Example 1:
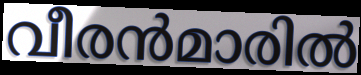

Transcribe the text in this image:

വീരൻമാരിൽ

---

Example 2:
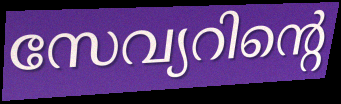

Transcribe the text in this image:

സേവ്യറിന്റെ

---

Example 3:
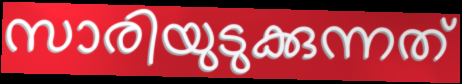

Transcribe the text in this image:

സാരിയുടുക്കുന്നത്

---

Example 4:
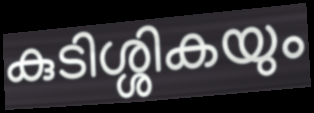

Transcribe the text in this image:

കുടിശ്ശികയും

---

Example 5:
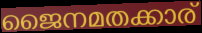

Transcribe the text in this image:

ജൈനമതക്കാര്